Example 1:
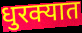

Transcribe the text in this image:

धुरक्यात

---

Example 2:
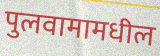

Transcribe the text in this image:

पुलवामामधील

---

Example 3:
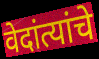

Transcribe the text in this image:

वेदांत्यांचे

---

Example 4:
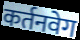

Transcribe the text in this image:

कर्तनवेग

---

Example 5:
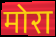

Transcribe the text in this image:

मोरा